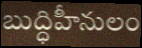
బుద్ధిహీనులం